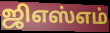
ஜிஎஸ்எம்